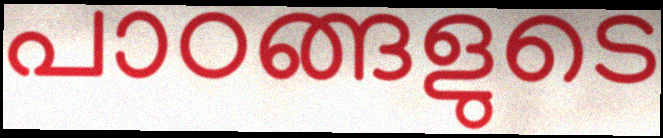
പാഠങ്ങളുടെ